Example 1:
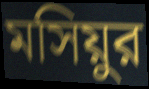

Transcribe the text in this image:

মসিয়ুর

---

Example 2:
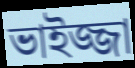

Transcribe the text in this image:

ভাইজ্জা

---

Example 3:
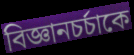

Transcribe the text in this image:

বিজ্ঞানচর্চাকে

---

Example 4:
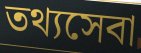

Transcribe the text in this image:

তথ্যসেবা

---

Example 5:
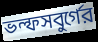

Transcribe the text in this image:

ভল্ফসবুর্গের